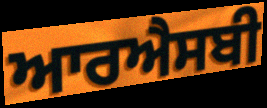
ਆਰਐਸਬੀ